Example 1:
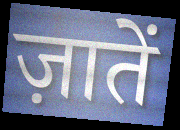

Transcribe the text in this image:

ज़ातें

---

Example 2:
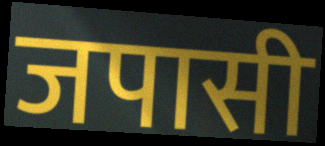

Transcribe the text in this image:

जपासी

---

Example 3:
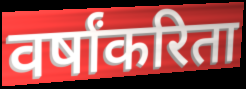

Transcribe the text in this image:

वर्षांकरिता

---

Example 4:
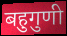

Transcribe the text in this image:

बहुगुणी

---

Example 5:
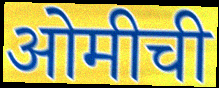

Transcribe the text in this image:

ओमीची